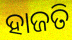
ହାଜତି